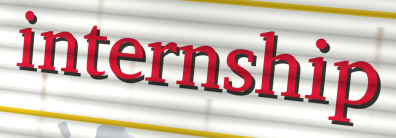
internship